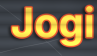
Jogi